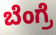
ಬೆಂಗ್ರೆ